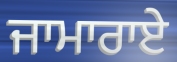
ਜਾਮਾਰਾਏ